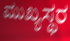
ಮುಖ್ಯಸ್ಥರ